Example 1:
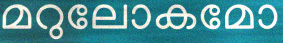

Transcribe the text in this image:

മറുലോകമോ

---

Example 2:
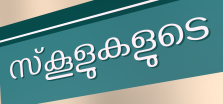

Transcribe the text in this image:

സ്‌കൂളുകളുടെ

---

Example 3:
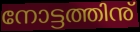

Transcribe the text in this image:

നോട്ടത്തിനു്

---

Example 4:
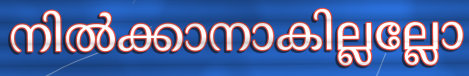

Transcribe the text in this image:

നിൽക്കാനാകില്ലല്ലോ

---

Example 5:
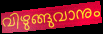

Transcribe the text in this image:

വിഴുങ്ങുവാനും